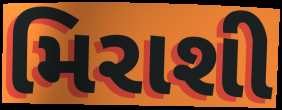
મિરાશી